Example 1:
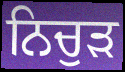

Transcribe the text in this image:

ਨਿਚੁੜ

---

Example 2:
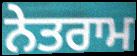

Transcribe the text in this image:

ਨੇਤਰਾਮ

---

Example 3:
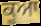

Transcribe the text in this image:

ਕੂਆ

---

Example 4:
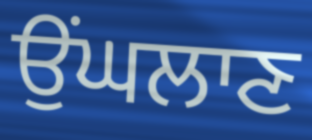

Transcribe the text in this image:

ਉਂਘਲਾਣ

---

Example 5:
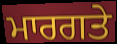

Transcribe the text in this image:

ਮਾਰਗਤੇ